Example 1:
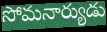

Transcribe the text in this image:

సోమనార్యుడు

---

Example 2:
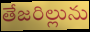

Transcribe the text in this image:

తేజరిల్లును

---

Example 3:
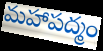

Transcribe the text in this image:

మహాపద్మం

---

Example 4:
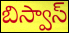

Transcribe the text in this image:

బిస్వాస్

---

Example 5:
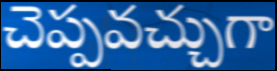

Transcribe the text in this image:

చెప్పవచ్చుగా